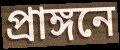
প্রাঙ্গনে